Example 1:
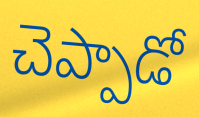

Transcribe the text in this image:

చెప్పాడో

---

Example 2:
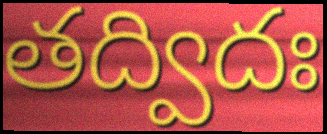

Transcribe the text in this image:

తద్విదః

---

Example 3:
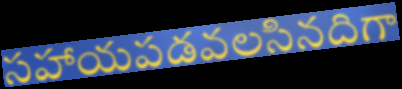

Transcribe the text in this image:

సహాయపడవలసినదిగా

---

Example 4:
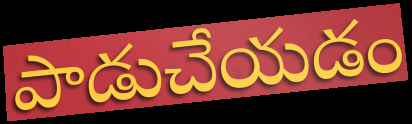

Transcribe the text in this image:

పాడుచేయడం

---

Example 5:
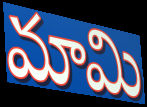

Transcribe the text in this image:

మామి